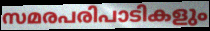
സമരപരിപാടികളും